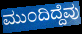
ಮುಂದಿದ್ದೆವು